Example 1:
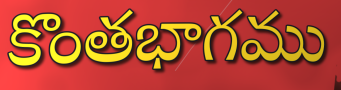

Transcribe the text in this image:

కొంతభాగము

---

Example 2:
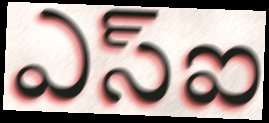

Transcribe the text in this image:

ఎస్ఐ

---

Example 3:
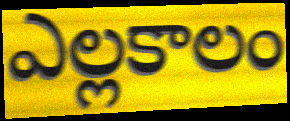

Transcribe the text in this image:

ఎల్లకాలం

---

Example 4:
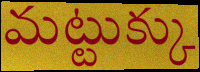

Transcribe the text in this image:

మట్టుక్కు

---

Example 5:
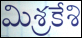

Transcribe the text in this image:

మిశ్రకేశి